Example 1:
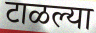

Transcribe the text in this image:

टाळल्या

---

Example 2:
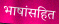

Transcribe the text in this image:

भाषांसहित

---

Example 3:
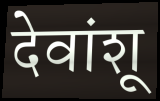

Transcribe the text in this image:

देवांशू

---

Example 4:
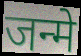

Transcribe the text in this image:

जन्मे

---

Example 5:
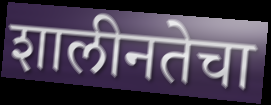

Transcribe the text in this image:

शालीनतेचा